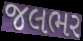
જલભર